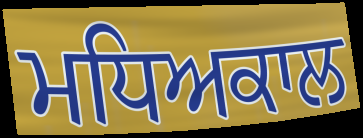
ਮਧਿਅਕਾਲ